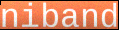
niband